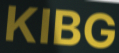
KIBG